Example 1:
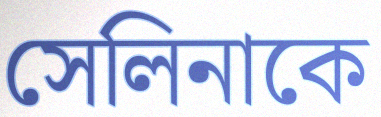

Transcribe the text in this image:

সেলিনাকে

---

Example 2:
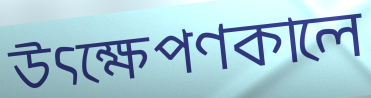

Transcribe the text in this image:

উৎক্ষেপণকালে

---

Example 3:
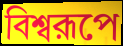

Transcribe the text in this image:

বিশ্বরূপে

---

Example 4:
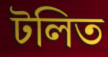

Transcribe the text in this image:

টলিত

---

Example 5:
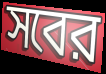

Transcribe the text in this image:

সবের